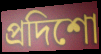
প্রদিশো